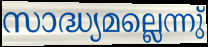
സാദ്ധ്യമല്ലെന്നു്